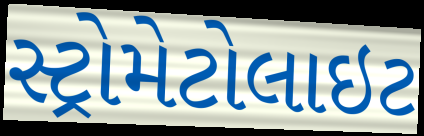
સ્ટ્રોમેટોલાઇટ